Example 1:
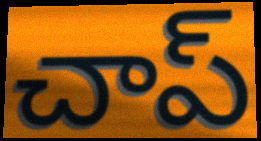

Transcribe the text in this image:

చాప్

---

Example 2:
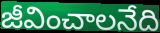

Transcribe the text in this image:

జీవించాలనేది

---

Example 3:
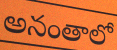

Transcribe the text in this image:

అనంతాలో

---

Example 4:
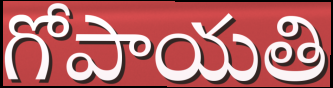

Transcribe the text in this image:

గోపాయతి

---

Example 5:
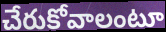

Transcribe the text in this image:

చేరుకోవాలంటూ